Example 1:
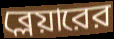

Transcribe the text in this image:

ব্লেয়ারের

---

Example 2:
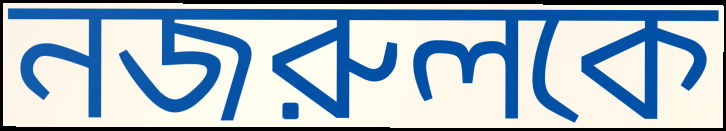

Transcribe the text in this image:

নজরুলকে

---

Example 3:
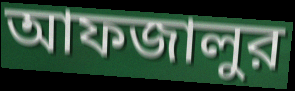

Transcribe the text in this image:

আফজালুর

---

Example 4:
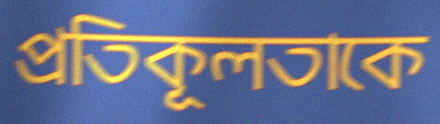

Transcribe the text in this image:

প্রতিকূলতাকে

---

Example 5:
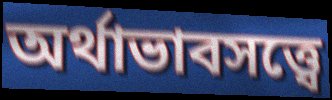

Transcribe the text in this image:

অর্থাভাবসত্ত্বে